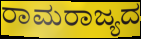
ರಾಮರಾಜ್ಯದ